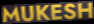
MUKESH